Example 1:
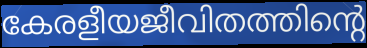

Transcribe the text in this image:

കേരളീയജീവിതത്തിന്റെ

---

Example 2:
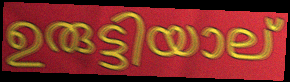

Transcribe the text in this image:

ഉരുട്ടിയാല്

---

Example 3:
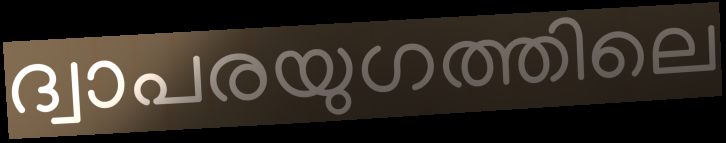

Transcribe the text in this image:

ദ്വാപരയുഗത്തിലെ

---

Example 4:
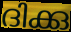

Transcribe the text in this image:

ദിക്കു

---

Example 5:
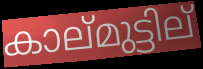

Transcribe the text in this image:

കാല്മുട്ടില്